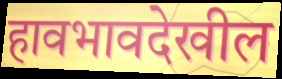
हावभावदेखील